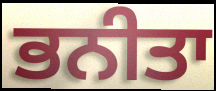
ਭਨੀਤਾ